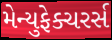
મેન્યુફેક્ચરર્સ